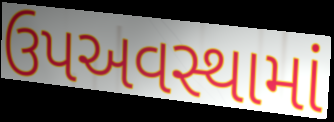
ઉપઅવસ્થામાં